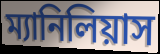
ম্যানিলিয়াস